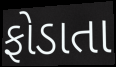
ફોડાતા